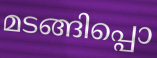
മടങ്ങിപ്പൊ